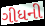
ગીધની